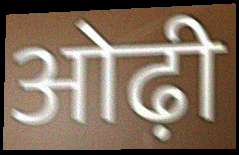
ओढ़ी